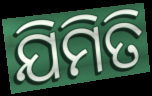
ଯିମିତି